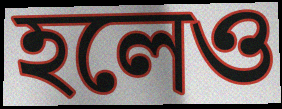
হলেও